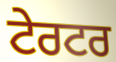
ਟੇਰਟਰ